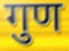
गुण